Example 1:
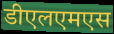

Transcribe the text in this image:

डीएलएमएस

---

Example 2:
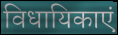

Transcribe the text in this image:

विधायिकाएं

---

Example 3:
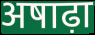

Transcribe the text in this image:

अषाढ़ा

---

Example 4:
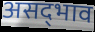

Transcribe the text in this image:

असद्भाव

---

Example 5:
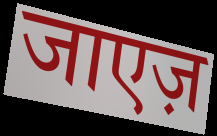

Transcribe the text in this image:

जाएज़